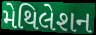
મેથિલેશન